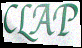
CLAP